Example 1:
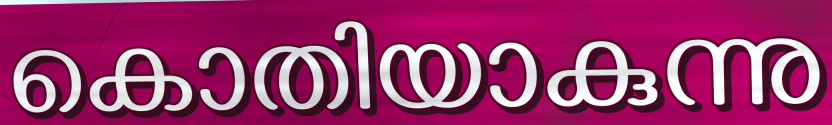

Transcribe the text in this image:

കൊതിയാകുന്നു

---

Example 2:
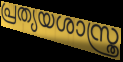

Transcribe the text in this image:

പ്രത്യയശാസ്ത്ര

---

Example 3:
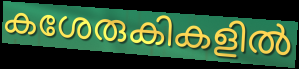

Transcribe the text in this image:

കശേരുകികളിൽ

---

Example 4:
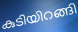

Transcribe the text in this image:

കുടിയിറങ്ങി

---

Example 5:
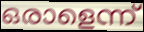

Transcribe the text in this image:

ഒരാളെന്ന്